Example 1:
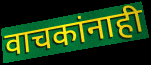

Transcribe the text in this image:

वाचकांनाही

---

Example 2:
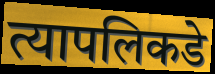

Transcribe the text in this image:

त्यापलिकडे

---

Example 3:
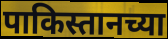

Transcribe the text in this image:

पाकिस्तानच्या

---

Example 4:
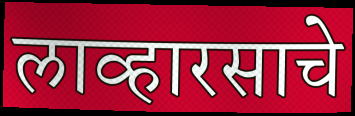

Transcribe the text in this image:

लाव्हारसाचे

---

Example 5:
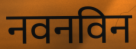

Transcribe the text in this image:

नवनविन